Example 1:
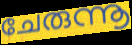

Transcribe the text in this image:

ചേരുന്നൂ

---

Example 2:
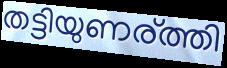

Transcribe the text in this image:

തട്ടിയുണര്ത്തി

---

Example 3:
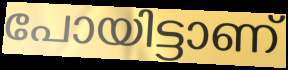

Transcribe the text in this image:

പോയിട്ടാണ്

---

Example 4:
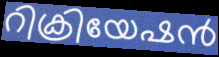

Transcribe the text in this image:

റിക്രിയേഷൻ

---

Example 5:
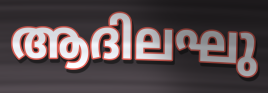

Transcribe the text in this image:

ആദിലഘു